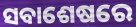
ସବାଶେଷରେ